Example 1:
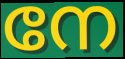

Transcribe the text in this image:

നേ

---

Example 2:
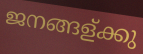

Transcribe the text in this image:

ജനങ്ങള്ക്കു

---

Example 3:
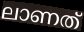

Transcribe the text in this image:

ലാണത്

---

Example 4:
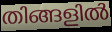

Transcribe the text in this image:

തിങ്ങളിൽ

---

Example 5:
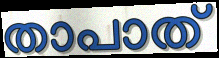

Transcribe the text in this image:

താപാത്